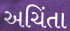
અચિંતા